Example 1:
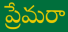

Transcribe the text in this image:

ప్రేమరా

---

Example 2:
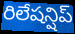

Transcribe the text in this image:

రిలేషన్షిప్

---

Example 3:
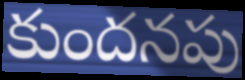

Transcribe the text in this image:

కుందనపు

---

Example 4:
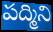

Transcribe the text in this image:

పద్మిని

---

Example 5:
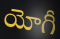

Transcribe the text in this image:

యోగీ